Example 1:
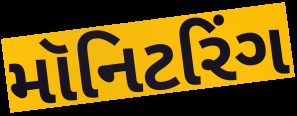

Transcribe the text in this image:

મૉનિટરિંગ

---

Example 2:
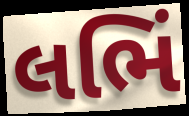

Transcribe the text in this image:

લભિં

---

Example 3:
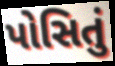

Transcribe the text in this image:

પોસિતું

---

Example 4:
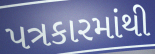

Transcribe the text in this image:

પત્રકારમાંથી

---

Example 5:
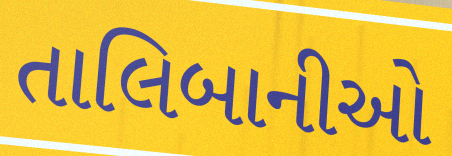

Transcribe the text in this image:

તાલિબાનીઓ